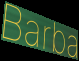
Barba